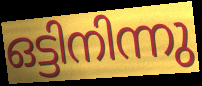
ഒട്ടിനിന്നു